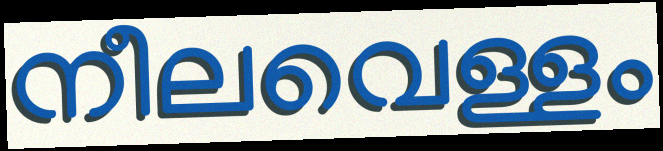
നീലവെള്ളം